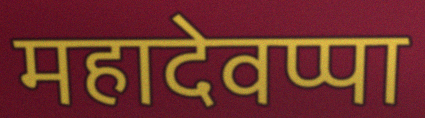
महादेवप्पा